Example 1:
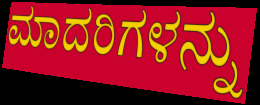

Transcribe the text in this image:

ಮಾದರಿಗಳನ್ನು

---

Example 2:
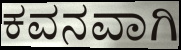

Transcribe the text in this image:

ಕವನವಾಗಿ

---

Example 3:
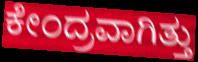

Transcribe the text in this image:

ಕೇಂದ್ರವಾಗಿತ್ತು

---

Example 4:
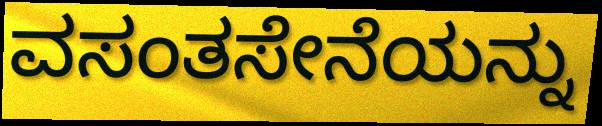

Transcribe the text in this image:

ವಸಂತಸೇನೆಯನ್ನು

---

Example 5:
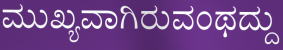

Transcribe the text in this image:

ಮುಖ್ಯವಾಗಿರುವಂಥದ್ದು